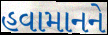
હવામાનને